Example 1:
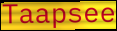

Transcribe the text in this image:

Taapsee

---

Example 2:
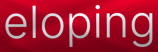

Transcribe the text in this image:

eloping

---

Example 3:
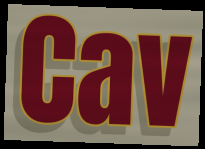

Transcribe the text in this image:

Cav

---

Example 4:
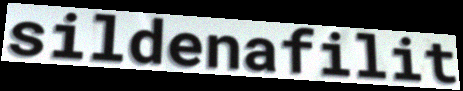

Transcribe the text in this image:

sildenafilit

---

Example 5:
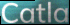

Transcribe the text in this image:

Catla